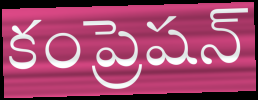
కంప్రెషన్